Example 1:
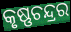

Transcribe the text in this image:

କୃଷ୍ଣଚନ୍ଦ୍ରର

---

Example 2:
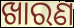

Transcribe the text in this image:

ଖାରଣ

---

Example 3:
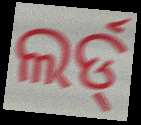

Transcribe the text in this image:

ଲର୍ଡ୍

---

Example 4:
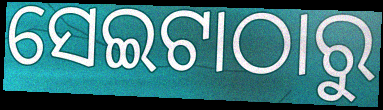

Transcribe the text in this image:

ସେଇଟାଠାରୁ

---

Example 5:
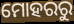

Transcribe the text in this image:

ମୋହରରୁ